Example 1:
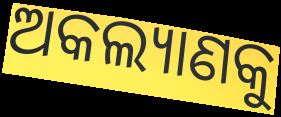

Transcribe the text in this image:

ଅକଲ୍ୟାଣକୁ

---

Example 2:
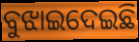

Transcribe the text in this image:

ବୁଝାଇଦେଇଛି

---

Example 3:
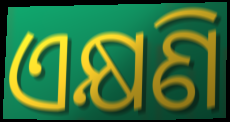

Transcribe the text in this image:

ଏକ୍ଷଣି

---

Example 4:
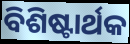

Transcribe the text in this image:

ବିଶିଷ୍ଟାର୍ଥକ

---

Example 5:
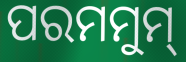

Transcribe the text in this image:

ପରମମୁମ୍